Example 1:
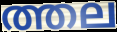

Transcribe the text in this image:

ത്തല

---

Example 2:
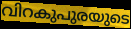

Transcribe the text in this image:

വിറകുപുരയുടെ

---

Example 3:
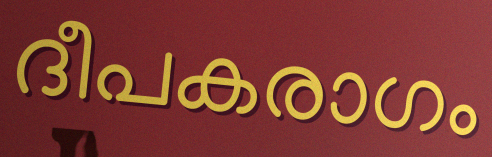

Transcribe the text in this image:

ദീപകരാഗം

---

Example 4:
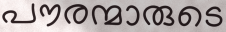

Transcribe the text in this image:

പൗരന്മാരുടെ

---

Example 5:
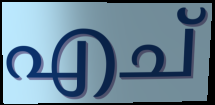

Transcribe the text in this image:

എച്